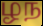
ழந